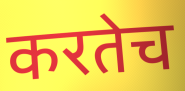
करतेच